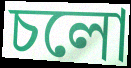
চলো